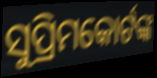
ସୁପ୍ରିମକୋର୍ଟଙ୍କ